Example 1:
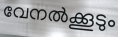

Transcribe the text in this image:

വേനൽക്കൂടും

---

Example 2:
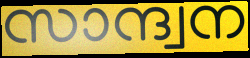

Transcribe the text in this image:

സാന്ദ്വന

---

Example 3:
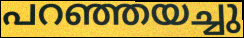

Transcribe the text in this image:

പറഞ്ഞയച്ചു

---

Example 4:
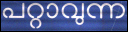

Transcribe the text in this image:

പറ്റാവുന്ന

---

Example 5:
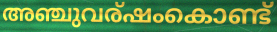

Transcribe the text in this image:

അഞ്ചുവര്ഷംകൊണ്ട്